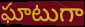
ఘాటుగా